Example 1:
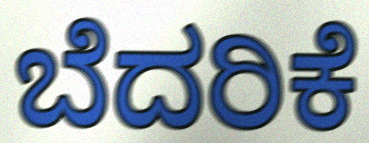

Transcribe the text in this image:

ಬೆದರಿಕೆ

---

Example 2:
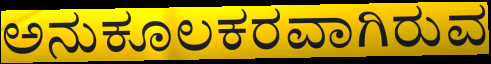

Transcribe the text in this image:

ಅನುಕೂಲಕರವಾಗಿರುವ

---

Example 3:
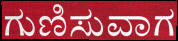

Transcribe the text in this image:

ಗುಣಿಸುವಾಗ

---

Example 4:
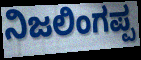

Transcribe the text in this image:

ನಿಜಲಿಂಗಪ್ಪ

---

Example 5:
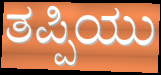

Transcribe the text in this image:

ತಪ್ಪಿಯು